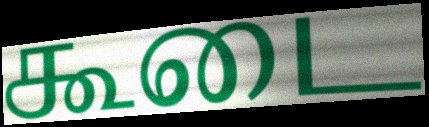
கூடை